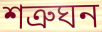
শত্ৰুঘন